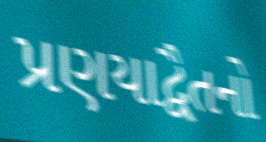
પ્રણયાદ્વૈતનો